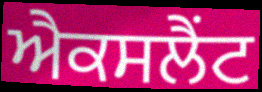
ਐਕਸਲੈਂਟ